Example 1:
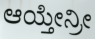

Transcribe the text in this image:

ಆಯ್ತೇನ್ರೀ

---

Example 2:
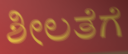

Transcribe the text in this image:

ಶೀಲತೆಗೆ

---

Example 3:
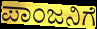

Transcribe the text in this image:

ಪಾಂಜನಿಗೆ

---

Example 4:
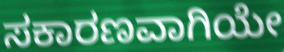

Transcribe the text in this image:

ಸಕಾರಣವಾಗಿಯೇ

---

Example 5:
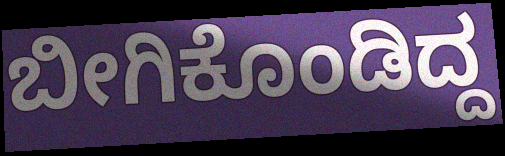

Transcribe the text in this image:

ಬೀಗಿಕೊಂಡಿದ್ದ